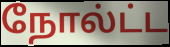
நோல்ட்ட